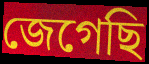
জেগেছি